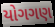
યોગગણ